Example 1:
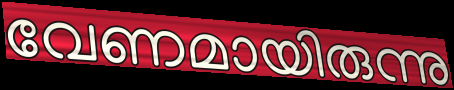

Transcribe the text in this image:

വേണമായിരുന്നു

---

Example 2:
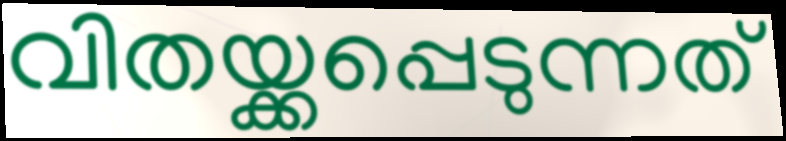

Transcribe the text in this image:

വിതയ്ക്കപ്പെടുന്നത്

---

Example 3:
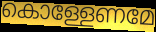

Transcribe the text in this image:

കൊള്ളേണമേ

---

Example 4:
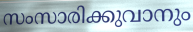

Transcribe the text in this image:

സംസാരിക്കുവാനും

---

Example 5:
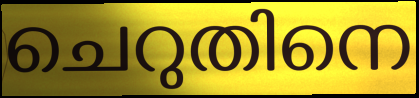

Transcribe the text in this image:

ചെറുതിനെ